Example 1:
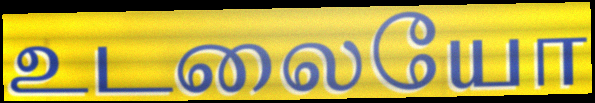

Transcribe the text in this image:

உடலையோ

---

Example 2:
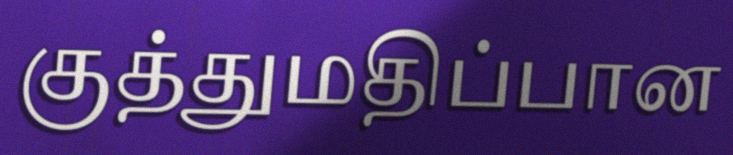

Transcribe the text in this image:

குத்துமதிப்பான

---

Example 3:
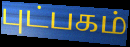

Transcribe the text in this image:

புட்பகம்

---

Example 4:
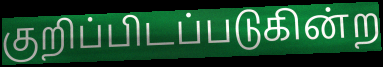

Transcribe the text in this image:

குறிப்பிடப்படுகின்ற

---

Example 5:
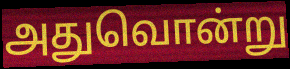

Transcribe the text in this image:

அதுவொன்று